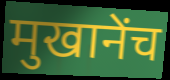
मुखानेंच